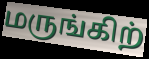
மருங்கிற்